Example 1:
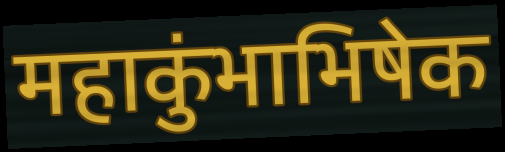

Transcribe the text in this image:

महाकुंभाभिषेक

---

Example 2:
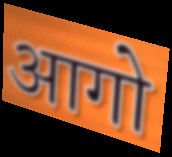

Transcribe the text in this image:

आगो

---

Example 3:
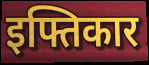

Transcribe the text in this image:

इफ्तिकार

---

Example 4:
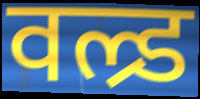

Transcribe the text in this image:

वल्र्ड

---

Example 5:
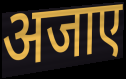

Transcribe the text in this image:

अजाए